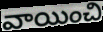
వాయించి